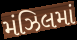
મંઝિલમાં